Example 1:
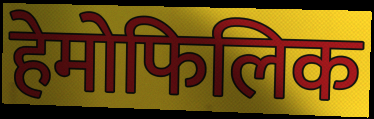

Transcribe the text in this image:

हेमोफिलिक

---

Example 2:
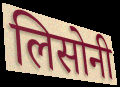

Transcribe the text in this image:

लिसोनी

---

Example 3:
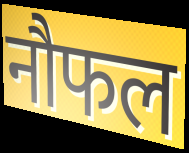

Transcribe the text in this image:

नौफल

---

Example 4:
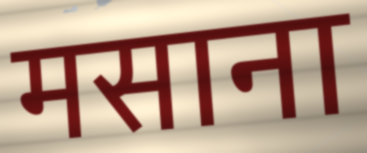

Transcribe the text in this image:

मसाना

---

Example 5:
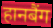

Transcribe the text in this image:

हानबैंग